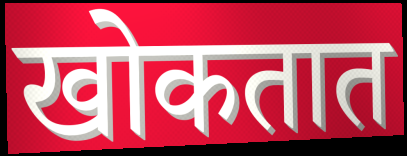
खोकतात